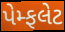
પેમ્ફલેટ